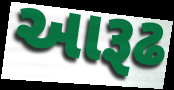
આરૂઢ